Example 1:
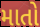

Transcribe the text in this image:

માતો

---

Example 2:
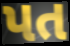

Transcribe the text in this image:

પત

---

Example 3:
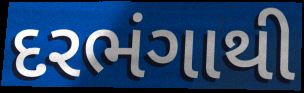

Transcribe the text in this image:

દરભંગાથી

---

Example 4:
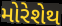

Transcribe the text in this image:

મોરેશેથ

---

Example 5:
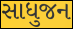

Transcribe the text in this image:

સાધુજન